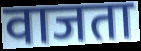
वाजता